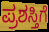
ಪ್ರಶಸ್ತಿಗೆ